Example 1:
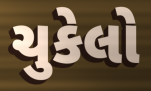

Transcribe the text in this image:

ચુકેલો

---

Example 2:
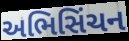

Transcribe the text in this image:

અભિસિંચન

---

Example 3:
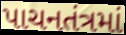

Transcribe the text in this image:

પાચનતંત્રમાં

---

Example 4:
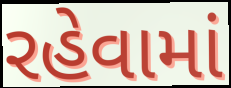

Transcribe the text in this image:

રહેવામાં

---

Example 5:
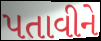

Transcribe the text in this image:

પતાવીને